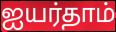
ஐயர்தாம்